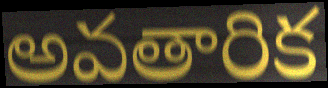
అవతారిక